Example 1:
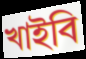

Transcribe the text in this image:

খাইবি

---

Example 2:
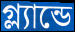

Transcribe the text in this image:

গ্ল্যান্ডে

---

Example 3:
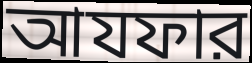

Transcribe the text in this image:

আযফার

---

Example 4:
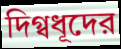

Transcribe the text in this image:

দিগ্বধূদের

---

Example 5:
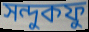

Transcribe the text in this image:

সন্দুকফু